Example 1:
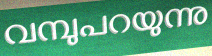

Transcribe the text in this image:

വമ്പുപറയുന്നു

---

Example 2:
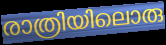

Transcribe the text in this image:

രാത്രിയിലൊരു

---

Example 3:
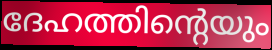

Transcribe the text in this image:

ദേഹത്തിന്റെയും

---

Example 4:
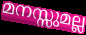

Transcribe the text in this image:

മനസ്സുമല്ല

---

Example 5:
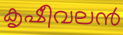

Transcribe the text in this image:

കൃഷീവലൻ